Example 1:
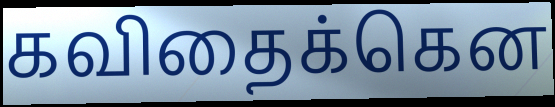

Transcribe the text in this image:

கவிதைக்கென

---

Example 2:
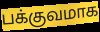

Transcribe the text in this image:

பக்குவமாக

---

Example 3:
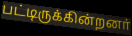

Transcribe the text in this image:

பட்டிருக்கின்றனர்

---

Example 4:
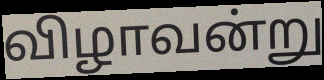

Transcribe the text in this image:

விழாவன்று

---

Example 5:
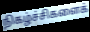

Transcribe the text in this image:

நிகழ்ச்சிகளைக்